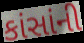
કાંસાંની